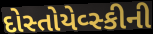
દોસ્તોયેવ્સ્કીની